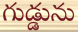
గుడ్డును